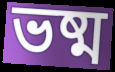
ভষ্ম